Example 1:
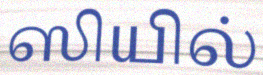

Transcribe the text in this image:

ஸியில்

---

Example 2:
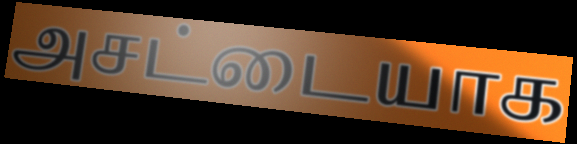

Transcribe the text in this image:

அசட்டையாக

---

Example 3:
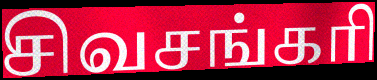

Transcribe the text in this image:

சிவசங்கரி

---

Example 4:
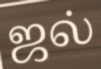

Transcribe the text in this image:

ஜல்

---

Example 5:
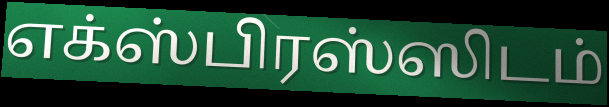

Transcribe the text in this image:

எக்ஸ்பிரஸ்ஸிடம்